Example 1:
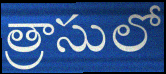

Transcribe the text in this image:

త్రాసులో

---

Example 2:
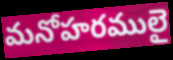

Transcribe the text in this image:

మనోహరములై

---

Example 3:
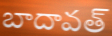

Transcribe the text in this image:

బాదావత్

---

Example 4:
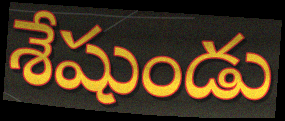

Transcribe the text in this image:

శేషుండు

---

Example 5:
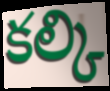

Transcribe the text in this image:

కల్కి